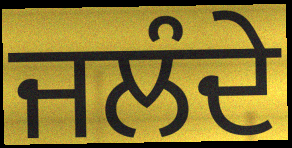
ਜਲੰਦੇ